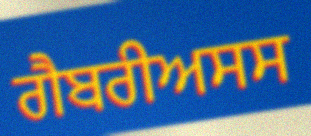
ਗੈਬਰੀਅਸਸ